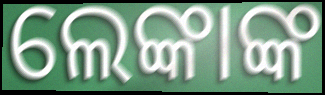
ଲେଙ୍କାଙ୍କ